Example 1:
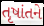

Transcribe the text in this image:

તૃષાંતને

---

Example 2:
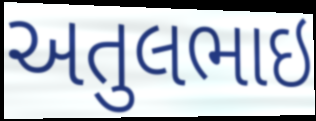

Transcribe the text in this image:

અતુલભાઇ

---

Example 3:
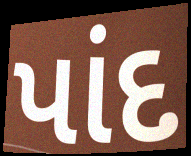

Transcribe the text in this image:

પાંદ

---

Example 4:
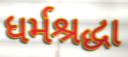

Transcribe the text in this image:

ધર્મશ્રદ્ધા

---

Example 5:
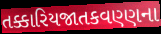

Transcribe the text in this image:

તક્કારિયજાતકવણ્ણના